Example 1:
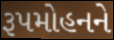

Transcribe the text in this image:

રૂપમોહનને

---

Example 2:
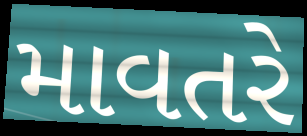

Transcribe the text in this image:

માવતરે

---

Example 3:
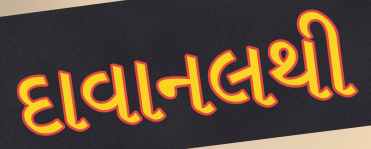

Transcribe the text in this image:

દાવાનલથી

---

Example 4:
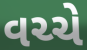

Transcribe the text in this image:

વચ્ચે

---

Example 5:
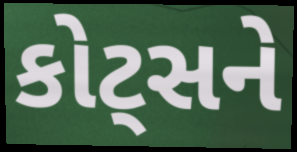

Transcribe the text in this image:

કોટ્સને